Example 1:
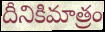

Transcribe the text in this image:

దీనికిమాత్రం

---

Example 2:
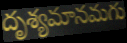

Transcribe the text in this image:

దృశ్యమానమగు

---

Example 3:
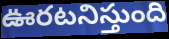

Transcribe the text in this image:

ఊరటనిస్తుంది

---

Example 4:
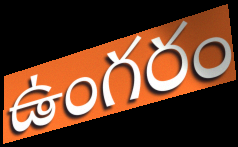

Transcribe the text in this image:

ఉంగరం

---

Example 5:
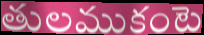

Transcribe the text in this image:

తులముకంటె